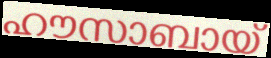
ഹൗസാബായ്